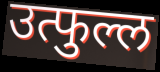
उत्फुल्ल